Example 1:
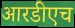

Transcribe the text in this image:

आरडीएच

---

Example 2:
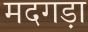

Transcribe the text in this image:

मदगड़ा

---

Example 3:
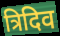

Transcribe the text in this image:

त्रिदिव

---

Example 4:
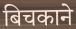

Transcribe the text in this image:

बिचकाने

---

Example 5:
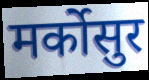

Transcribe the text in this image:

मर्कोसुर